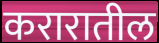
करारातील